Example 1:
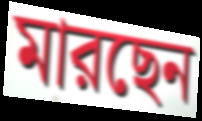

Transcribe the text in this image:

মারছেন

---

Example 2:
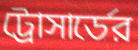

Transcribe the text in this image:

ট্রোসার্ডের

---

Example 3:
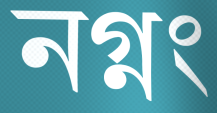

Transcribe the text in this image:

নগ্নং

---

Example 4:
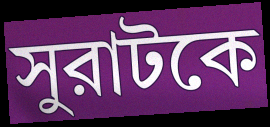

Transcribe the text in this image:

সুরাটকে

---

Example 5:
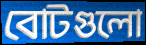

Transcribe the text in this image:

বোটগুলো